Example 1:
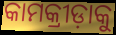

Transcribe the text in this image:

କାମକ୍ରୀଡ଼ାକୁ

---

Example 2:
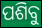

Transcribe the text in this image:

ପଶିବୁ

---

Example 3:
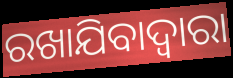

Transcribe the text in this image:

ରଖାଯିବାଦ୍ଵାରା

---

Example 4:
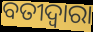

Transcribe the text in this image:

ବତୀଦ୍ୱାରା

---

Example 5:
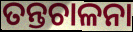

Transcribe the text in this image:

ତନ୍ତଚାଳନା